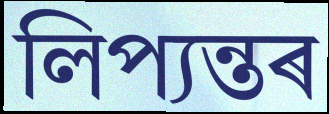
লিপ্যন্তৰ